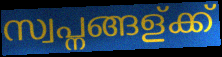
സ്വപ്നങ്ങള്ക്ക്